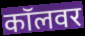
कॉलवर